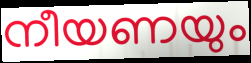
നീയണയും